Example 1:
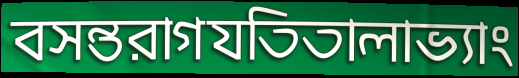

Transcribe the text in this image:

বসন্তরাগযতিতালাভ্যাং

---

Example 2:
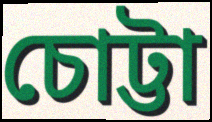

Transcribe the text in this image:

চোট্টা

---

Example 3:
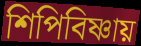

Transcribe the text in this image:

শিপিবিষ্ণায়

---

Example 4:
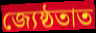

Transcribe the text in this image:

জ্যেষ্ঠতাত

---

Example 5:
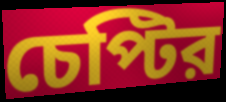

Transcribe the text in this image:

চেপ্টির